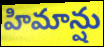
హిమాన్షు